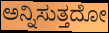
ಅನ್ನಿಸುತ್ತದೋ